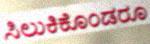
ಸಿಲುಕಿಕೊಂಡರೂ